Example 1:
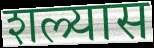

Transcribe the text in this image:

शल्यास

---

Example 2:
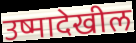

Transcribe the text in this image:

उष्मादेखील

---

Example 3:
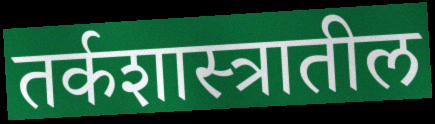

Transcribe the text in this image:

तर्कशास्त्रातील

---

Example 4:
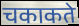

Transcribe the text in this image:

चकाकते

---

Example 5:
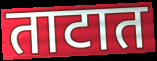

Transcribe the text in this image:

ताटात